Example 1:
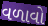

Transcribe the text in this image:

વળાવો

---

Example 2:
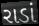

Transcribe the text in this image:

રાડાં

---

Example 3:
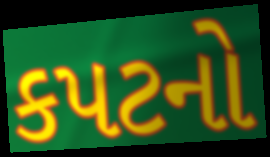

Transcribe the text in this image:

કપટનો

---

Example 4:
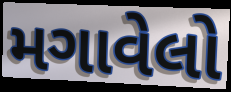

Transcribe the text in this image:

મગાવેલો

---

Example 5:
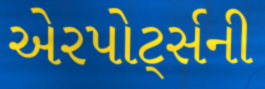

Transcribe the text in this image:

એરપોર્ટ્સની